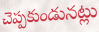
చెప్పకుండునట్లు